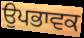
ਉਪਭਾਵਕ